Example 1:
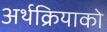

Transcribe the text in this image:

अर्थक्रियाको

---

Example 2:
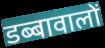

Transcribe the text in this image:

डब्बावालों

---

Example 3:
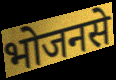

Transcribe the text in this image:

भोजनसे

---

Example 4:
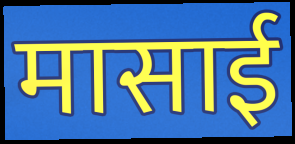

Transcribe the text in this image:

मासाई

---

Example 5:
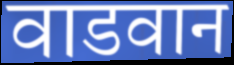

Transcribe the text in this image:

वाडवान